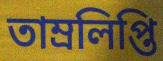
তাম্রলিপ্তি